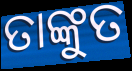
ତାଙ୍କୁତ